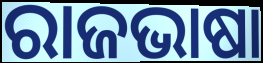
ରାଜଭାଷା